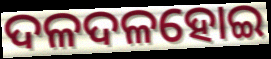
ଦଳଦଳହୋଇ